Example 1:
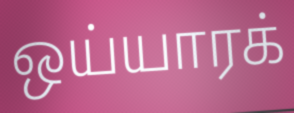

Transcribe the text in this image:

ஒய்யாரக்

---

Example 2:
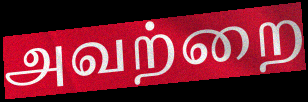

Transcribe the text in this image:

அவற்றை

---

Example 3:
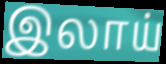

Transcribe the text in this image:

இலாய்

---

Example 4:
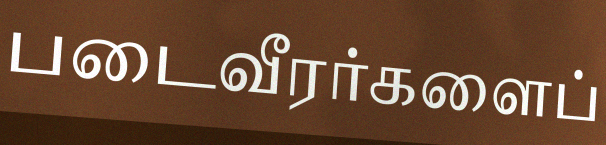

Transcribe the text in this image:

படைவீரர்களைப்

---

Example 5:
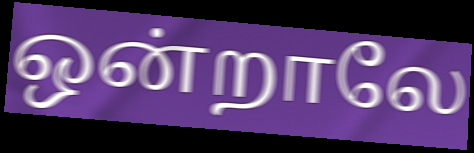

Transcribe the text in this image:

ஒன்றாலே